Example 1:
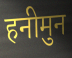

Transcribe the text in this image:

हनीमुन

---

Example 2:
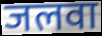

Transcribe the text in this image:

जलवा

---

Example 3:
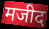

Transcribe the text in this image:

मजीद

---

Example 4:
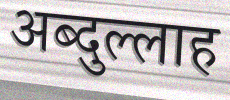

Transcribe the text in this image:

अब्दुल्लाह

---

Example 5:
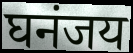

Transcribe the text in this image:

घनंजय